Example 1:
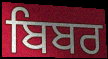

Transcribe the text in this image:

ਬਿਬਰ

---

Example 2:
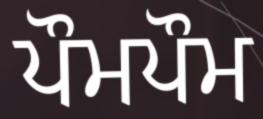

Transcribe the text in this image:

ਪੌਮਪੌਮ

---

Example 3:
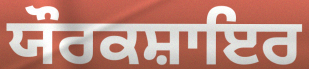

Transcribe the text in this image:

ਯੌਰਕਸ਼ਾਇਰ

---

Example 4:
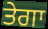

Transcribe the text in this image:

ਤੇਗਾ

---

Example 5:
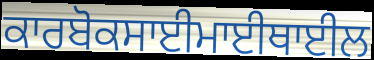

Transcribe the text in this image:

ਕਾਰਬੋਕਸਾਈਮਾਈਥਾਈਲ